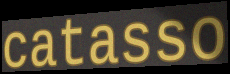
catasso